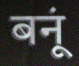
बनूं